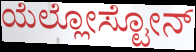
ಯೆಲ್ಲೋಸ್ಟೋನ್